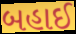
બહાઈ